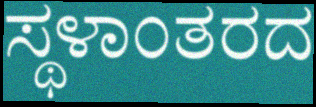
ಸ್ಥಳಾಂತರದ